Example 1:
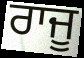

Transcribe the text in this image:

ਰਾਜੂ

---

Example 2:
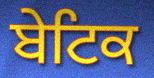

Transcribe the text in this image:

ਬੇਟਿਕ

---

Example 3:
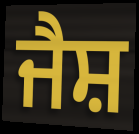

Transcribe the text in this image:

ਜੈਸ਼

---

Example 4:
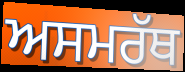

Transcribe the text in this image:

ਅਸਮਰੱਥ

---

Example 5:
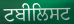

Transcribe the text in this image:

ਟਬੀਲਿਸਟ